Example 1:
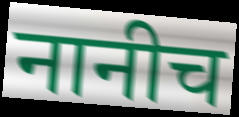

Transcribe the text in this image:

नानीच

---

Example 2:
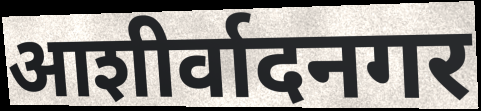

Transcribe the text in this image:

आशीर्वादनगर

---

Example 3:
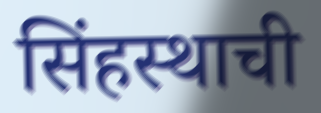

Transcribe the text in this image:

सिंहस्थाची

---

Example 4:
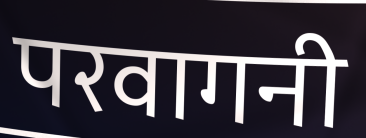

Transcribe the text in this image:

परवागनी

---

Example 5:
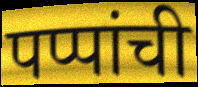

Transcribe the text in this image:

पप्पांची